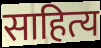
साहित्‍य